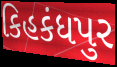
કિહકંધપુર